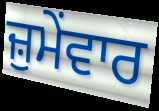
ਜ਼ੁਮੇਂਵਾਰ